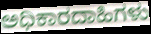
ಅಧಿಕಾರದಾಹಿಗಳು